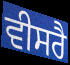
ਵੀਸਰੈ